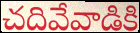
చదివేవాడికి